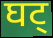
घट्